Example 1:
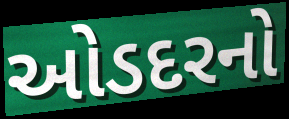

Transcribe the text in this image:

ઓડદરનો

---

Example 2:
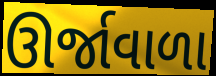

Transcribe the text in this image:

ઊર્જાવાળા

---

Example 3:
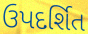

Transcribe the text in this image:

ઉપદર્શિત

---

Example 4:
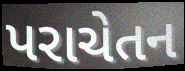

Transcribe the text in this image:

પરાચેતન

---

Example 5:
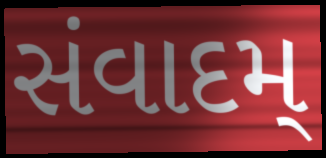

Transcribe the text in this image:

સંવાદમ્